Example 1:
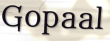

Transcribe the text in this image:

Gopaal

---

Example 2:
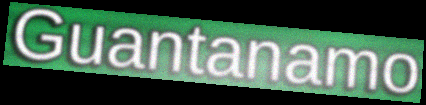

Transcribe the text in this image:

Guantanamo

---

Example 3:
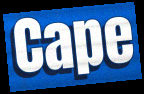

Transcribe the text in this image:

Cape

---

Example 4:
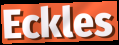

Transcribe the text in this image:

Eckles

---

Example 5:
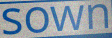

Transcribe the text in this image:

sown